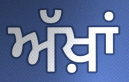
ਅੱਖ਼ਾਂ